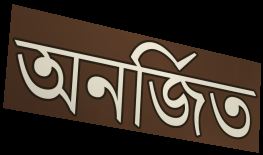
অনর্জিত